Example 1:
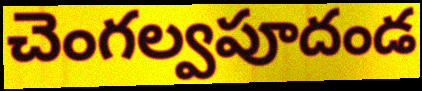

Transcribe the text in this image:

చెంగల్వపూదండ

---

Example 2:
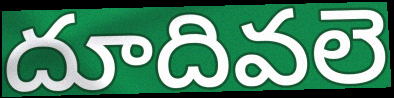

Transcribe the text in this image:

దూదివలె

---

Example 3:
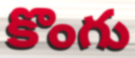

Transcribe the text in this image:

కొంగు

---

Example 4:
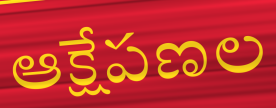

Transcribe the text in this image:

ఆక్షేపణల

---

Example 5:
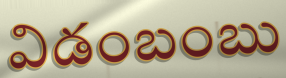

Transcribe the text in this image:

విడంబంబు